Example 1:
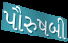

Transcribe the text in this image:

પૌરુષબી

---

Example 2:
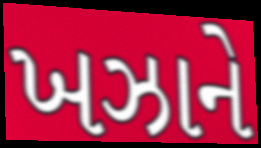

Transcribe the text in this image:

ખઝાને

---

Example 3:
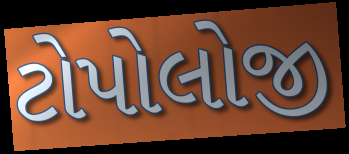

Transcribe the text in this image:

ટોપોલોજી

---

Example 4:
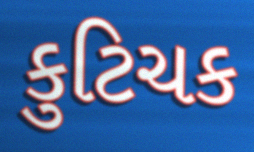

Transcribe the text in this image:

કુટિચક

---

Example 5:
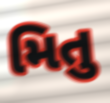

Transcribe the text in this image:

મિતુ